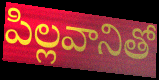
పిల్లవానితో